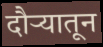
दौऱ्यातून